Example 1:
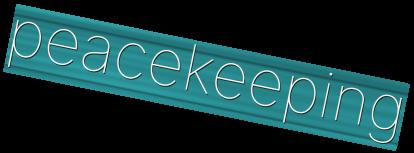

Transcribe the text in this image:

peacekeeping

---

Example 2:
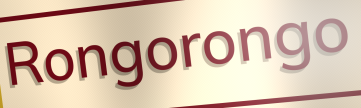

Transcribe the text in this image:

Rongorongo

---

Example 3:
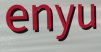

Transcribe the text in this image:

enyu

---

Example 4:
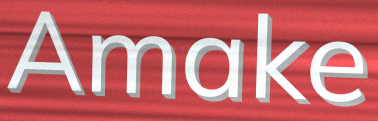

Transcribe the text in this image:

Amake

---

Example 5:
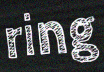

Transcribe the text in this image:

ring